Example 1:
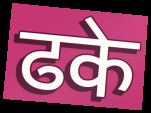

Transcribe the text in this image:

ढके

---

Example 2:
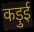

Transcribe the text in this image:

कड़ुई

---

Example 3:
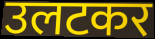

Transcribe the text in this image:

उलटकर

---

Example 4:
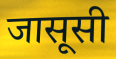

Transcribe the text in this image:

जासूसी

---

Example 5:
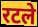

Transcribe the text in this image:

रटले